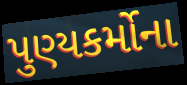
પુણ્યકર્મોના